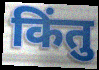
किंतु